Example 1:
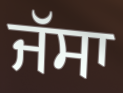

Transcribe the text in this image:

ਜੱਸਾ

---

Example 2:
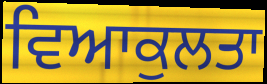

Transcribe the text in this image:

ਵਿਆਕੁਲਤਾ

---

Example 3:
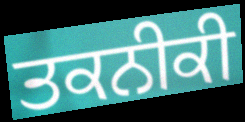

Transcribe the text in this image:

ਤਕਨੀਕੀ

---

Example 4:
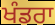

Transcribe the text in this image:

ਖੰਡਰਾ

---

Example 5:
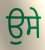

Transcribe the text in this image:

ਉਸੇ